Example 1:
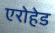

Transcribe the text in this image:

एरोहेड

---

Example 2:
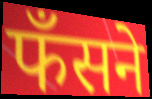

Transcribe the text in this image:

फँसने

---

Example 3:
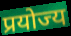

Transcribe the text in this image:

प्रयोज्य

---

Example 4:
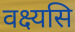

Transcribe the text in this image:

वक्ष्यसि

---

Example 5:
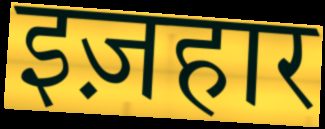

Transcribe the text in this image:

इज़हार